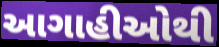
આગાહીઓથી